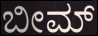
ಬೀಮ್